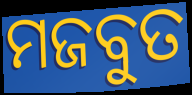
ମଜବୁତ